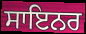
ਸਾਇਨਰ